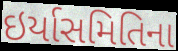
ઇર્યાસમિતિના